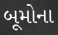
બૂમોના